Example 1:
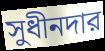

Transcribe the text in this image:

সুধীনদার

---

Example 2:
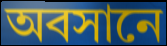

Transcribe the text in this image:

অবসানে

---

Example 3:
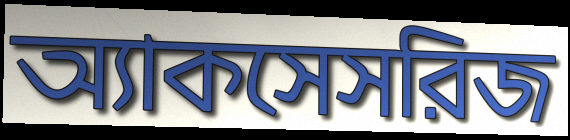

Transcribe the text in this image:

অ্যাকসেসরিজ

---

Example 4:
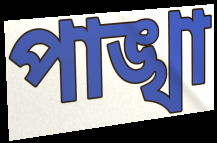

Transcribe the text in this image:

পাঙ্খা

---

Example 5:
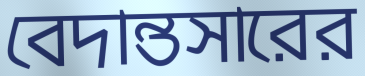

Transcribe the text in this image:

বেদান্তসারের